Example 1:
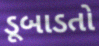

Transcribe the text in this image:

ડૂબાડતો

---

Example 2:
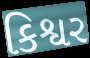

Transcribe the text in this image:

કિશ્વર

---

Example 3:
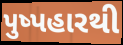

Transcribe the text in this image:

પુષ્પહારથી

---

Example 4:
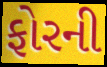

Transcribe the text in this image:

ફોરની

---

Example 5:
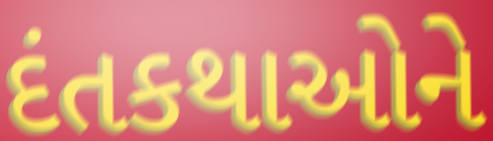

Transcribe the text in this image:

દંતકથાઓને